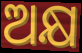
ଅକ୍ଷ